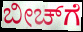
ಬೀಚ್‌ಗೆ